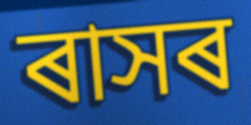
ৰাসৰ